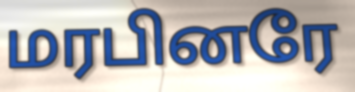
மரபினரே